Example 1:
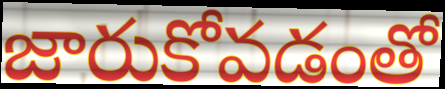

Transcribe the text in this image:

జారుకోవడంతో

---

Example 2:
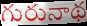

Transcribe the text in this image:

గురునాథ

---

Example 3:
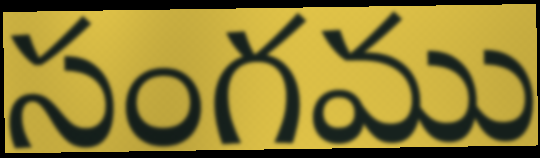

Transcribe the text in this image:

సంగము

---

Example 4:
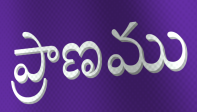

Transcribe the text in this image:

ప్రాణము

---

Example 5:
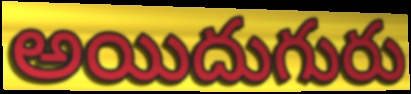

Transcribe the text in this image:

అయిదుగురు